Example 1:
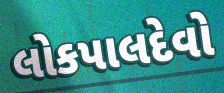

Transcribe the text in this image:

લોકપાલદેવો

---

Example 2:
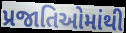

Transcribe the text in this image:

પ્રજાતિઓમાંથી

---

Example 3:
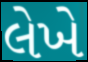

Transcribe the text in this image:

લેખે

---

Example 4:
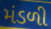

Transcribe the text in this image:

મંડળી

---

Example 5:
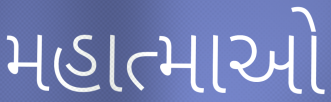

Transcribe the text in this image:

મહાત્માઓ